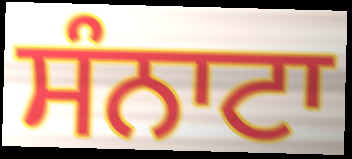
ਸੰਨਾਟਾ